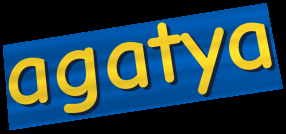
agatya